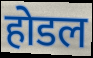
होडल